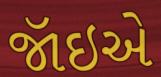
જૉઇએ